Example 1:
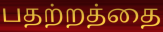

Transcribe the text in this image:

பதற்றத்தை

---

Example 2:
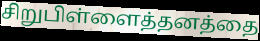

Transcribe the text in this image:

சிறுபிள்ளைத்தனத்தை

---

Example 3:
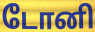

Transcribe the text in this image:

டோனி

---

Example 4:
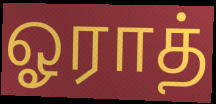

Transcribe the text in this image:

ஓராத்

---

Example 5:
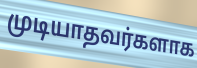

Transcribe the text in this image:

முடியாதவர்களாக